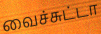
வைச்சுட்டா